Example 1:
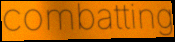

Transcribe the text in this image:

combatting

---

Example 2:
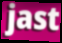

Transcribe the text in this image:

jast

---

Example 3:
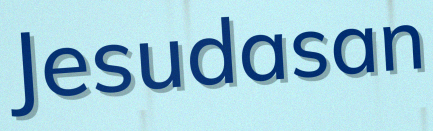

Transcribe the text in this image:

Jesudasan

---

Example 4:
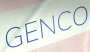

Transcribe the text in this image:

GENCO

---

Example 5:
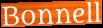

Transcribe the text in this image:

Bonnell